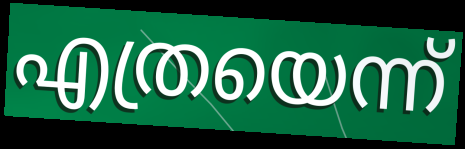
എത്രയെന്ന്